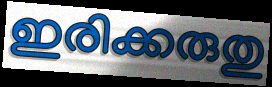
ഇരിക്കരുതു